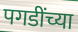
पगडींच्या